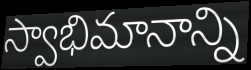
స్వాభిమానాన్ని